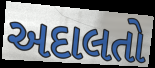
અદાલતો